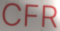
CFR